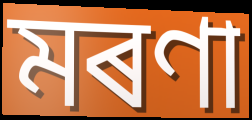
মৰণা